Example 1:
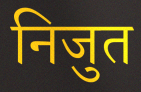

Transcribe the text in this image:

निजुत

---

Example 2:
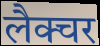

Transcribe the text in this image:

लैक्चर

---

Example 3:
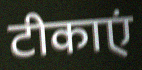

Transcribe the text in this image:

टीकाएं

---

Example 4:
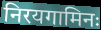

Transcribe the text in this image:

निरयगामिनः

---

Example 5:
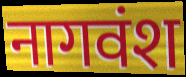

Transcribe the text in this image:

नागवंश